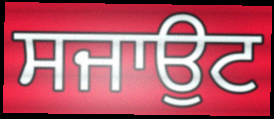
ਸਜਾਉਟ